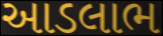
આડલાભ